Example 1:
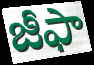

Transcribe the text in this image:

జీఫా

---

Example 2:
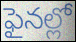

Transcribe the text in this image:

ఫైనల్లో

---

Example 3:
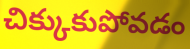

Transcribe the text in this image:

చిక్కుకుపోవడం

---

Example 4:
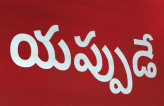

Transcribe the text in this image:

యప్పుడే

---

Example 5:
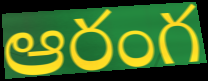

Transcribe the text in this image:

ఆరంగ